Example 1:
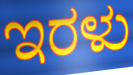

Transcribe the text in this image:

ಇರಳು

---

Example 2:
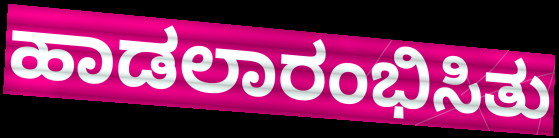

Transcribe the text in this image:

ಹಾಡಲಾರಂಭಿಸಿತು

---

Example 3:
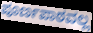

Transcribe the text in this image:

ಪೂರ್ಣಪಾಠವಲ್ಲ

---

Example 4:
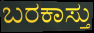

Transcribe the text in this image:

ಬರಕಾಸ್ತು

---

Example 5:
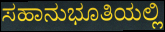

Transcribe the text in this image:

ಸಹಾನುಭೂತಿಯಲ್ಲಿ